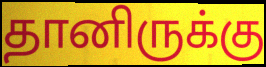
தானிருக்கு